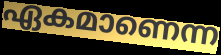
ഏകമാണെന്ന